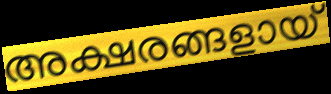
അക്ഷരങ്ങളായ്